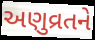
અણુવ્રતને